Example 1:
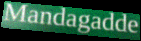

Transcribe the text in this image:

Mandagadde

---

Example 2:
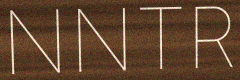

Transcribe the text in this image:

NNTR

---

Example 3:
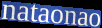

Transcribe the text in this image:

nataonao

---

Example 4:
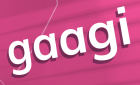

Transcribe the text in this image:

gaagi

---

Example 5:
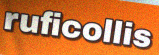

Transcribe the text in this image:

ruficollis